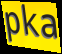
pka